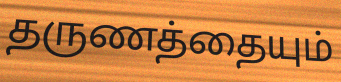
தருணத்தையும்